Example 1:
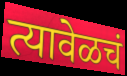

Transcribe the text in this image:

त्यावेळचं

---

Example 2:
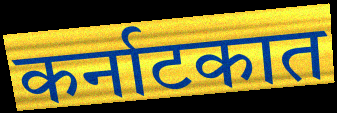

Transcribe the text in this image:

कर्नाटकात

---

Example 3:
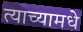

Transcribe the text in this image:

त्याच्यामधे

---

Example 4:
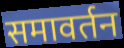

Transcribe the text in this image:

समावर्तन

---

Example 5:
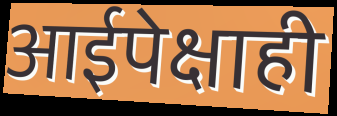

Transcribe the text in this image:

आईपेक्षाही